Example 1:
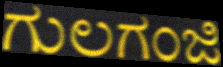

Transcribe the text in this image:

ಗುಲಗಂಜಿ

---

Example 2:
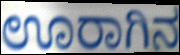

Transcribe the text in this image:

ಊರಾಗಿನ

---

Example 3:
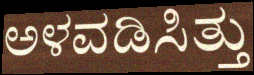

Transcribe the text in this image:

ಅಳವಡಿಸಿತ್ತು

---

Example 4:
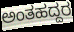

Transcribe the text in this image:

ಅಂತಹದ್ದರ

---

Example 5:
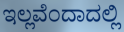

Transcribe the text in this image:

ಇಲ್ಲವೆಂದಾದಲ್ಲಿ